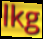
lkg